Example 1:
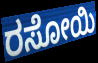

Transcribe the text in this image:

ರಸೋಯಿ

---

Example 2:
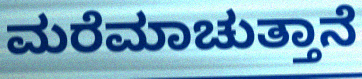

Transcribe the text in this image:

ಮರೆಮಾಚುತ್ತಾನೆ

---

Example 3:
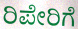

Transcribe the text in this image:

ರಿಪೇರಿಗೆ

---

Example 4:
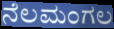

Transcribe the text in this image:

ನೆಲಮಂಗಲ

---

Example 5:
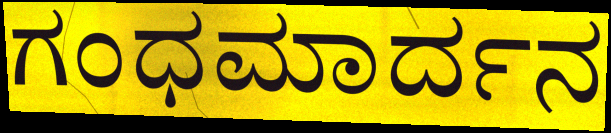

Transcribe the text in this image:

ಗಂಧಮಾರ್ದನ